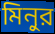
মিনুর